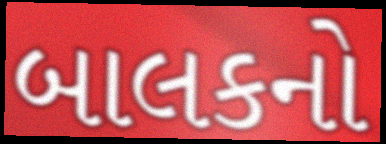
બાલકનો